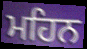
ਮਹਿਨ